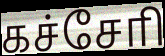
கச்சேரி